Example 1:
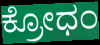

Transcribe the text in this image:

ಕ್ರೋಧಂ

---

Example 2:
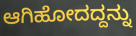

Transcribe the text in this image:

ಆಗಿಹೋದದ್ದನ್ನು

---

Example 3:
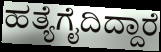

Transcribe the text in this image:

ಹತ್ಯೆಗೈದಿದ್ದಾರೆ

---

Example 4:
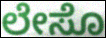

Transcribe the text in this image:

ಲೇಸೊ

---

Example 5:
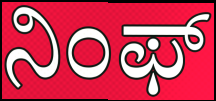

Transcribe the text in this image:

ನಿಂಫ್